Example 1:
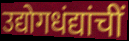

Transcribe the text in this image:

उद्योगधंद्यांचीं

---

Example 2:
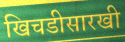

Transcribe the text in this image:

खिचडीसारखी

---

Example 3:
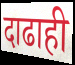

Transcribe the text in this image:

दाढाही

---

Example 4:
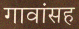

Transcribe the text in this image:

गावांसह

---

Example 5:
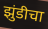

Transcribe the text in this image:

झुंडीचा